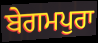
ਬੇਗਮਪੁਰਾ